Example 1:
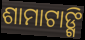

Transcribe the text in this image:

ଶାମାଟାଙ୍ଗି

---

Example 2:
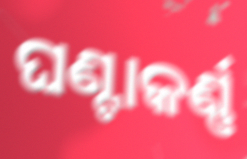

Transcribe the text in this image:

ଘଣ୍ଟାକର୍ଣ୍ଣ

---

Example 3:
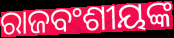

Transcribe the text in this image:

ରାଜବଂଶୀୟଙ୍କ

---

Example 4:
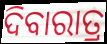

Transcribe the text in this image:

ଦିବାରାତ୍ର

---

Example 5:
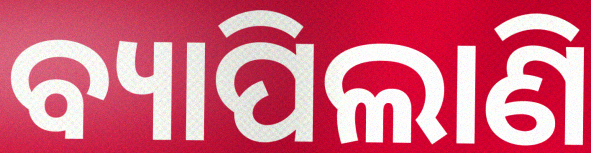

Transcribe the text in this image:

ବ୍ୟାପିଲାଣି